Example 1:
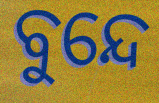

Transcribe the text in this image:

ବୁନ୍ଦେ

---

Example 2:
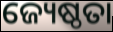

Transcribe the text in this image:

ଜ୍ୟେଷ୍ଠତା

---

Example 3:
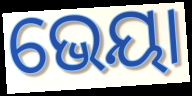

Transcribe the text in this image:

ଭେୟା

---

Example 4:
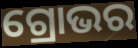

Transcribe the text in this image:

ଗ୍ରୋଭର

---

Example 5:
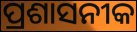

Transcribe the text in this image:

ପ୍ରଶାସନୀକ